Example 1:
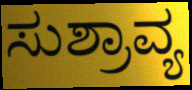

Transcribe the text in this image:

ಸುಶ್ರಾವ್ಯ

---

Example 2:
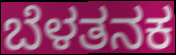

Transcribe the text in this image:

ಬೆಳತನಕ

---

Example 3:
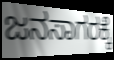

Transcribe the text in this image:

ಜನಸಾಗರಕ್ಕೆ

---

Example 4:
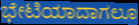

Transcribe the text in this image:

ಭೇಟಿಯಾದಾಗಲೂ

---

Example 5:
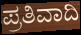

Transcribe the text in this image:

ಪ್ರತಿವಾದಿ